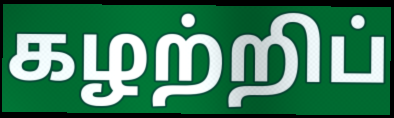
கழற்றிப்